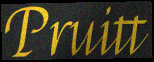
Pruitt